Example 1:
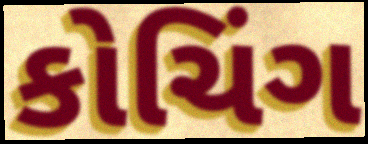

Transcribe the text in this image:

કોચિંગ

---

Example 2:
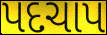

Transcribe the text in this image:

પદચાપ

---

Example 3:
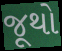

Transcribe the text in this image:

જૂથો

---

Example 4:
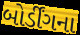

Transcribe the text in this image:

બોર્ડીંગના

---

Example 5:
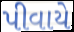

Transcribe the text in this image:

પીવાયે